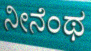
ನೀನೆಂಥ